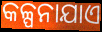
କଳ୍ପନାଯାଏ